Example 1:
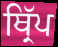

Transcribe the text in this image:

ਥ੍ਰਿੱਪ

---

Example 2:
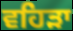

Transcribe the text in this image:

ਵਹਿੜਾ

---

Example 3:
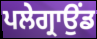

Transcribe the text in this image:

ਪਲੇਗ੍ਰਾਉਂਡ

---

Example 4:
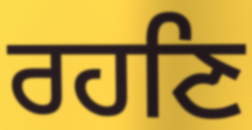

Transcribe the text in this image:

ਰਹਣਿ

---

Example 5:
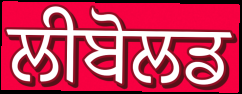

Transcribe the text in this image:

ਲੀਬੋਲਡ